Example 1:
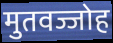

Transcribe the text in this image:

मुतवज्जोह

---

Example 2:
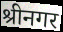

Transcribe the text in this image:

श्रीनगर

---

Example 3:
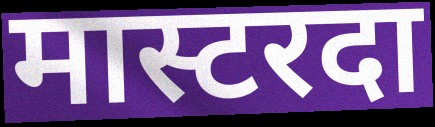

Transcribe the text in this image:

मास्टरदा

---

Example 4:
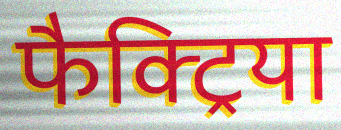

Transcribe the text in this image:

फैक्ट्रिया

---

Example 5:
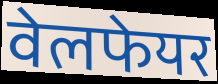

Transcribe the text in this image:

वेलफेयर